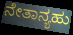
ನೇತಾನ್ಯಹು